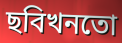
ছবিখনতো